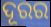
ଦୂରର